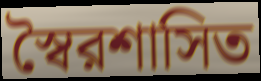
স্বৈরশাসিত